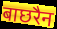
बाछरैन